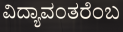
ವಿದ್ಯಾವಂತರೆಂಬ